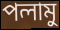
পলামু